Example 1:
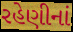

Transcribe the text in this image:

રહેણીનાં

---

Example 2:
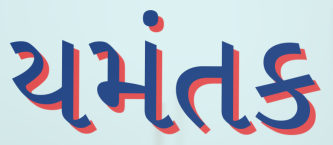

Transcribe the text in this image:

યમંતક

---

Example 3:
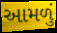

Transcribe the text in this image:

આમળું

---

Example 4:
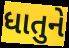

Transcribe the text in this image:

ધાતુને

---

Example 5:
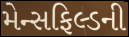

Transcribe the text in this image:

મેન્સફિલ્ડની